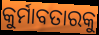
କୁର୍ମାବତାରକୁ